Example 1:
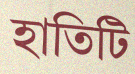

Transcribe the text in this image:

হাতিটি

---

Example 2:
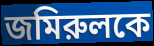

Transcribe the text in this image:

জমিরুলকে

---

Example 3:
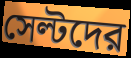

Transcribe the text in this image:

সেল্টদের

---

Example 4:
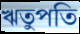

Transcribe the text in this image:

ঋতুপতি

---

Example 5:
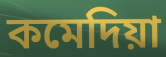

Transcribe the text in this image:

কমেদিয়া